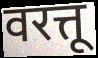
वरत्तू